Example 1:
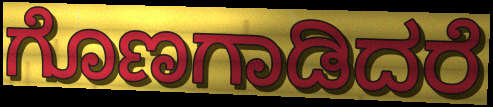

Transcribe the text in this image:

ಗೊಣಗಾಡಿದರೆ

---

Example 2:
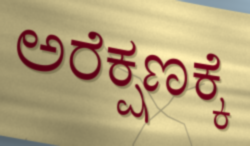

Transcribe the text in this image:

ಅರೆಕ್ಷಣಕ್ಕೆ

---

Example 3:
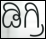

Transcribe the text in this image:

ಡಿಗ್ರಿ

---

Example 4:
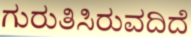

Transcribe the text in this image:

ಗುರುತಿಸಿರುವದಿದೆ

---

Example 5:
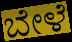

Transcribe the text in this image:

ಬೇಳೆ